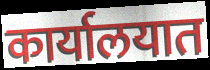
कार्यालयात